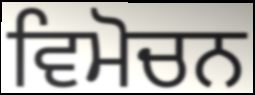
ਵਿਮੋਚਨ